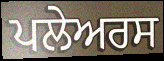
ਪਲੇਅਰਸ